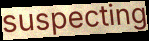
suspecting